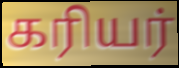
கரியர்